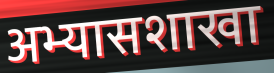
अभ्यासशाखा